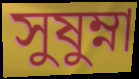
সুষুম্না